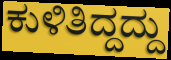
ಕುಳಿತಿದ್ದದ್ದು